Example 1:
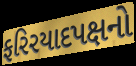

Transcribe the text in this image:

ફરિરયાદપક્ષનો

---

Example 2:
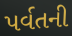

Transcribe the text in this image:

પર્વતની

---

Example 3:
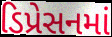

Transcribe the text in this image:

ડિપ્રેસનમાં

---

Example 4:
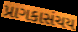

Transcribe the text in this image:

પ્રાગકાસંચય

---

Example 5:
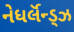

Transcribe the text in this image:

નેધર્લૅન્ડ્ઝ